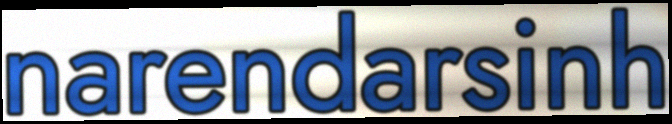
narendarsinh